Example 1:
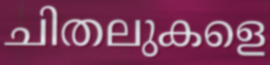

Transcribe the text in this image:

ചിതലുകളെ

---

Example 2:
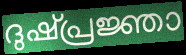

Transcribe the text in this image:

ദുഷ്പ്രജ്ഞാ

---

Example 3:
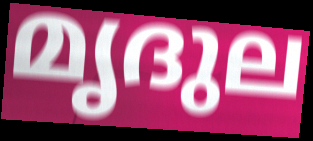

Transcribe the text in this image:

മൃദുല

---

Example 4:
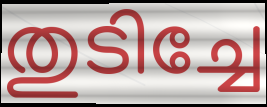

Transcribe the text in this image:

തുടിച്ചേ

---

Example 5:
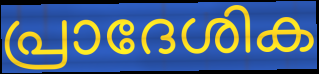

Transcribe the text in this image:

പ്രാദേശിക